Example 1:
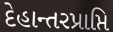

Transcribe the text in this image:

દેહાન્તરપ્રાપ્તિ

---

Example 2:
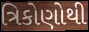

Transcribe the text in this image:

ત્રિકોણોથી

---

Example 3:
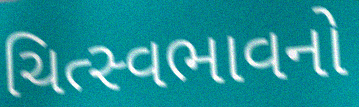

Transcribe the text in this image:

ચિત્સ્વભાવનો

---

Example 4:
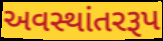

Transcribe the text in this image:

અવસ્થાંતરરૂપ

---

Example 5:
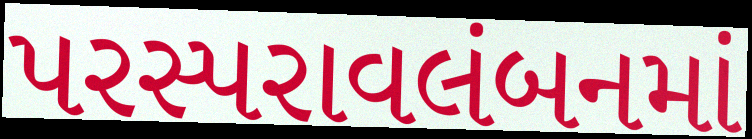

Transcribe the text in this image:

પરસ્પરાવલંબનમાં